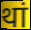
थां